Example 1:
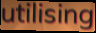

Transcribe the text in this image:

utilising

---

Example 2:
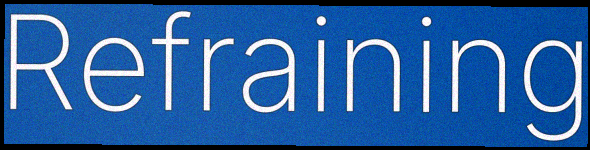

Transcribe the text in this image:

Refraining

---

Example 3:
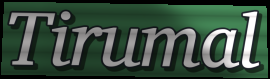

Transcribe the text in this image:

Tirumal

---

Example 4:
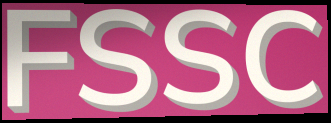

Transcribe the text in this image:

FSSC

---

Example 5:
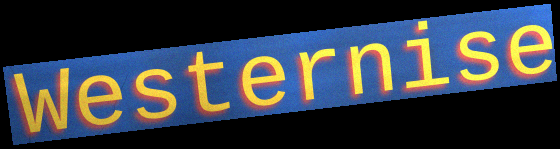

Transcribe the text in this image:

Westernise